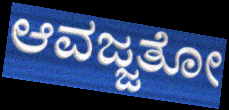
ಆವಜ್ಜತೋ